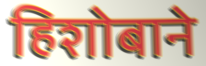
हिशोबाने